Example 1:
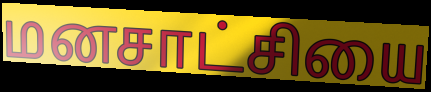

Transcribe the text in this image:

மனசாட்சியை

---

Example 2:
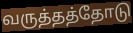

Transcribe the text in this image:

வருத்தத்தோடு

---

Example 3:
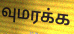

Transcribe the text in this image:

வுமரக்க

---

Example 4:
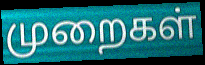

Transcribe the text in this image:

முறைகள்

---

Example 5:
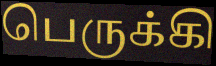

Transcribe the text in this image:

பெருக்கி